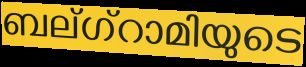
ബല്ഗ്റാമിയുടെ